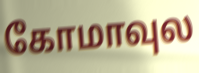
கோமாவுல